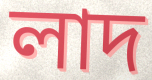
লাদ